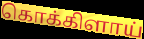
கொக்கிளாய்